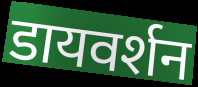
डायवर्शन